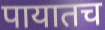
पायातच